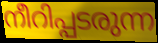
നീറിപ്പടരുന്ന